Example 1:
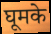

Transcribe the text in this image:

घूमके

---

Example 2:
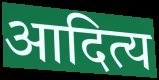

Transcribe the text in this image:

आदित्‍य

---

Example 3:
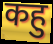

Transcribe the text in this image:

कहु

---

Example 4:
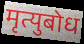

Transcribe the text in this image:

मृत्युबोध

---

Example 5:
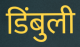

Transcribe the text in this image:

डिंबुली